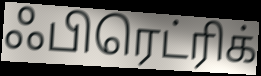
ஃபிரெட்ரிக்